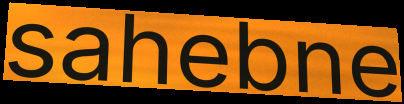
sahebne